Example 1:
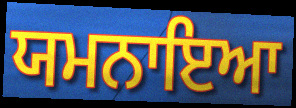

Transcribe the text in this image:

ਯਮਨਾਇਆ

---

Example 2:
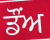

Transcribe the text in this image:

ਡੌਂਅ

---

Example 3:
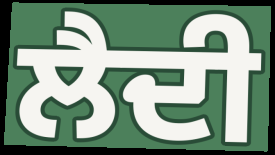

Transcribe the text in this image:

ਲੈਦੀ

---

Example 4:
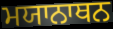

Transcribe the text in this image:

ਮਯਾਨਾਥਨ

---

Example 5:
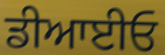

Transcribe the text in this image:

ਡੀਆਈਓ